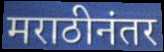
मराठीनंतर